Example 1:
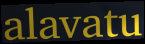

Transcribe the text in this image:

alavatu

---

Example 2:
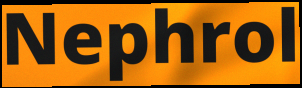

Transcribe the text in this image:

Nephrol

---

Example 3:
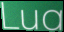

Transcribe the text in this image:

Lua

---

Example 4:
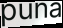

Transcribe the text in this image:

puna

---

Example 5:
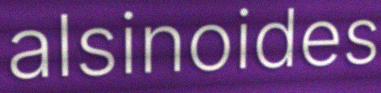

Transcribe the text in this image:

alsinoides